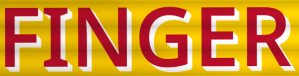
FINGER